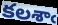
కలశాఁ